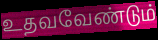
உதவவேண்டும்